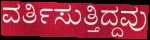
ವರ್ತಿಸುತ್ತಿದ್ದವು